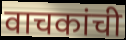
वाचकांची